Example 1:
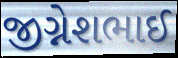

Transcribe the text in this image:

જીગ્નેશભાઈ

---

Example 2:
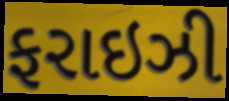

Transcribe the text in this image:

ફરાઇઝી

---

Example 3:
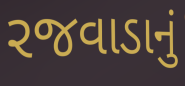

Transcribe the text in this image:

રજવાડાનું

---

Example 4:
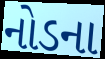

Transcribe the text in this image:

નોડના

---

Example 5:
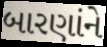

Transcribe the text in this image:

બારણાંને